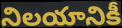
నిలయానికీ